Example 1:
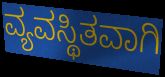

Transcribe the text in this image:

ವ್ಯವಸ್ಥಿತವಾಗಿ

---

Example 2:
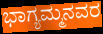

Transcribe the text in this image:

ಭಾಗ್ಯಮ್ಮನವರ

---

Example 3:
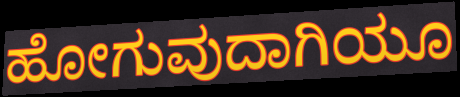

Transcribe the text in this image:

ಹೋಗುವುದಾಗಿಯೂ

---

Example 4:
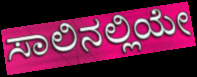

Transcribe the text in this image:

ಸಾಲಿನಲ್ಲಿಯೇ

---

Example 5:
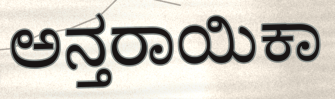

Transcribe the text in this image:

ಅನ್ತರಾಯಿಕಾ